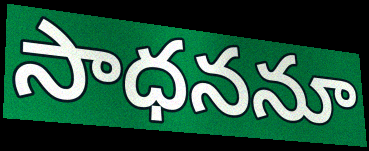
సాధననూ